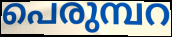
പെരുമ്പറ